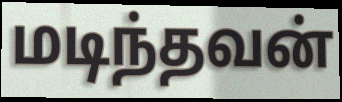
மடிந்தவன்